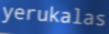
yerukalas